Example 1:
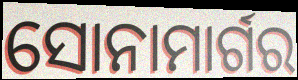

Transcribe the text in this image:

ସୋନାମାର୍ଗର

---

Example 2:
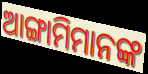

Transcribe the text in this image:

ଆଙ୍ଗାମିମାନଙ୍କ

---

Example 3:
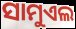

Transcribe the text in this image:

ସାମୁଏଲ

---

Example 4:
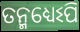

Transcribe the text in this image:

ତନ୍ମଧ୍ୟେଽପି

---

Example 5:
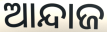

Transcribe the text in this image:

ଆନ୍ଦାଜ